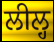
ਲੀਲ੍ਹ